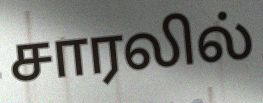
சாரலில்